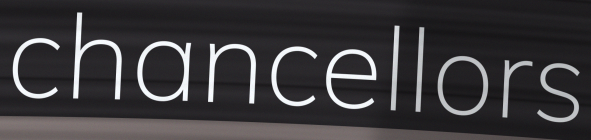
chancellors